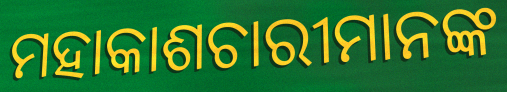
ମହାକାଶଚାରୀମାନଙ୍କ